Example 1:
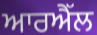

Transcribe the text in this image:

ਆਰਐੱਲ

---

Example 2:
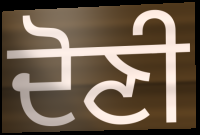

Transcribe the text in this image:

ਦੋਣੀ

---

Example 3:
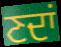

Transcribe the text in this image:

ਣਦਾਂ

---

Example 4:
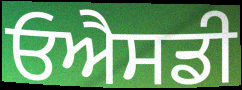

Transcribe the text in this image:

ਓਐਸਡੀ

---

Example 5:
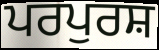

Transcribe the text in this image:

ਪਰਪੁਰਸ਼